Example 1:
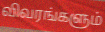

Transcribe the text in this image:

விவரங்களும்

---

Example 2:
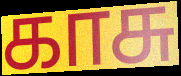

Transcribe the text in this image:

காசு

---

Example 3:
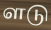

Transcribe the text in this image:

ளடு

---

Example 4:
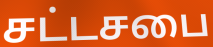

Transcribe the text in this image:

சட்டசபை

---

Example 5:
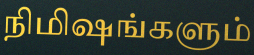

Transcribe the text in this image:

நிமிஷங்களும்